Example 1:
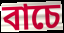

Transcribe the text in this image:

বাচে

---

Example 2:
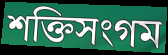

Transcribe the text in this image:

শক্তিসংগম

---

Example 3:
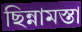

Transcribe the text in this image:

ছিন্নামস্তা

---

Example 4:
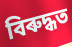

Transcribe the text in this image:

বিৰুদ্ধত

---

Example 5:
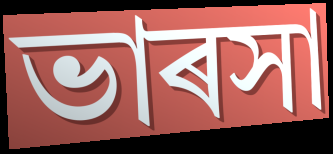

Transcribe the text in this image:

ভাৰসা